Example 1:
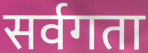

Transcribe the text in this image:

सर्वगता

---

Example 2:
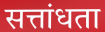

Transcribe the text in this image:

सत्तांधता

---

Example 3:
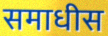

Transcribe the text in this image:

समाधीस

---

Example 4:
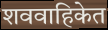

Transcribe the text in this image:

शववाहिकेत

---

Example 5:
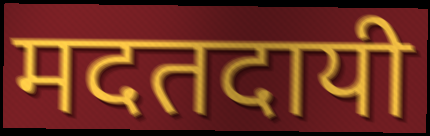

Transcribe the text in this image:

मदतदायी